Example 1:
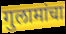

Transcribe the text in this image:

गुलामांचा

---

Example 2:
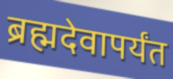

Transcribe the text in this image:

ब्रह्मदेवापर्यंत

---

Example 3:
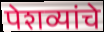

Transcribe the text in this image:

पेशव्यांचे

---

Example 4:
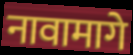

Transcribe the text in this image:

नावामागे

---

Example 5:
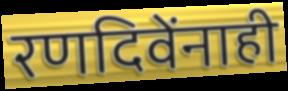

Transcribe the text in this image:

रणदिवेंनाही